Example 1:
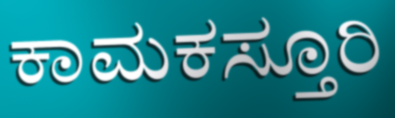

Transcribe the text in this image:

ಕಾಮಕಸ್ತೂರಿ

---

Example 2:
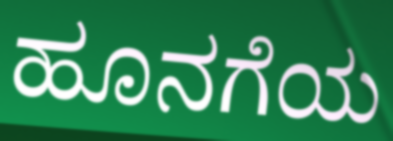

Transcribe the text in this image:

ಹೂನಗೆಯ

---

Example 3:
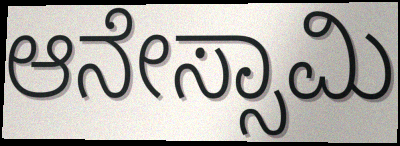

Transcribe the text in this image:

ಆನೇಸ್ಸಾಮಿ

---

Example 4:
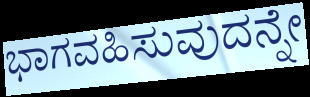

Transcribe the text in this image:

ಭಾಗವಹಿಸುವುದನ್ನೇ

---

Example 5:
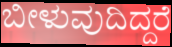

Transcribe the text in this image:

ಬೀಳುವುದಿದ್ದರೆ